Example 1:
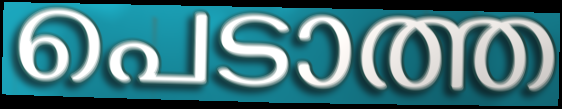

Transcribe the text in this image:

പെടാത്ത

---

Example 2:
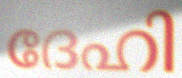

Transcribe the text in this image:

ദേഹി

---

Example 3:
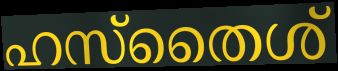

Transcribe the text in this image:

ഹസ്തൈശ്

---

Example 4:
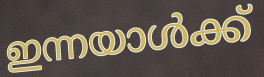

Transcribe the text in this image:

ഇന്നയാൾക്ക്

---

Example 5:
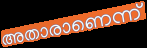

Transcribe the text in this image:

അതാരാണെന്ന്